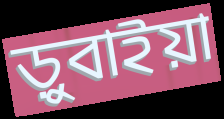
ড়ুবাইয়া